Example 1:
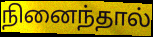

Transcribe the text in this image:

நினைந்தால்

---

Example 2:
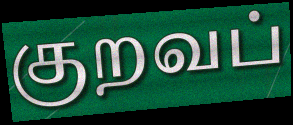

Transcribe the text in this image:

குறவப்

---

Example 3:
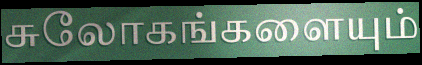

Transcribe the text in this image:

சுலோகங்களையும்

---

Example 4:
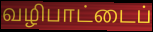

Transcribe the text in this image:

வழிபாட்டைப்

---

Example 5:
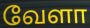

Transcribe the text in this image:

வேளா